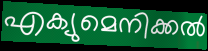
എക്യുമെനിക്കൽ